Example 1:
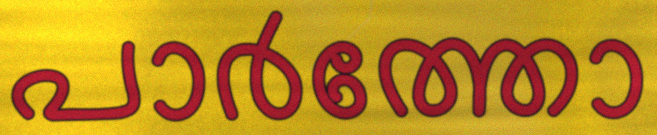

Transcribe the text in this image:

പാർത്തോ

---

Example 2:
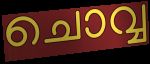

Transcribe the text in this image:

ചൊവ്വ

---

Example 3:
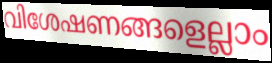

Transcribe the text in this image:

വിശേഷണങ്ങളെല്ലാം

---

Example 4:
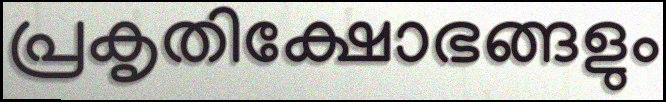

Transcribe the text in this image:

പ്രകൃതിക്ഷോഭങ്ങളും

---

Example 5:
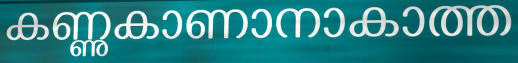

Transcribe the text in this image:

കണ്ണുകാണാനാകാത്ത